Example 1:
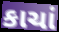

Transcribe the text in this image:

કાચાં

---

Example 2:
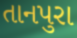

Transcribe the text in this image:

તાનપુરા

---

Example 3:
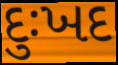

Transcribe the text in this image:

દુઃખદ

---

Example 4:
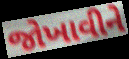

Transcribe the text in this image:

જોખાવીને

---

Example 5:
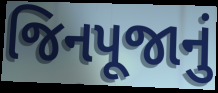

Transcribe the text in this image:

જિનપૂજાનું